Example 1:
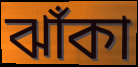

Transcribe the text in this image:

ঝাঁকা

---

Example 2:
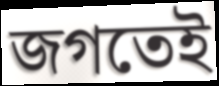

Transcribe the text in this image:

জগতেই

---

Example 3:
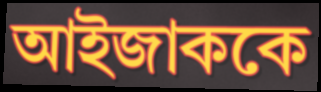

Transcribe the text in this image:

আইজাককে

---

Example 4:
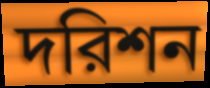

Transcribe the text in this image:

দরিশন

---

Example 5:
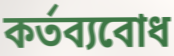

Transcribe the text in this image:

কর্তব্যবোধ